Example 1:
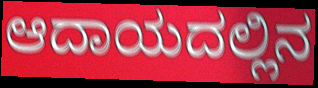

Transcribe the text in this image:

ಆದಾಯದಲ್ಲಿನ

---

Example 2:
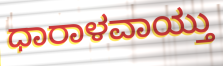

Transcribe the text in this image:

ಧಾರಾಳವಾಯ್ತು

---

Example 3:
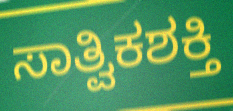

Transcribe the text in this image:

ಸಾತ್ವಿಕಶಕ್ತಿ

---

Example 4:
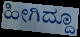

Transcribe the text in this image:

ಹೀಗಿದ್ದೂ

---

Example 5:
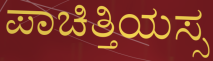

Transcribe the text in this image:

ಪಾಚಿತ್ತಿಯಸ್ಸ